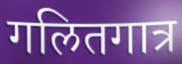
गलितगात्र